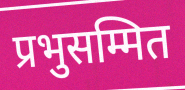
प्रभुसम्मित